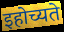
इहोच्यते